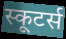
स्‍कूटर्स